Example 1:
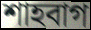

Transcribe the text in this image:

শাহবাগ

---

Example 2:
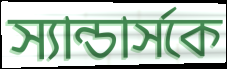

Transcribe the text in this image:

স্যান্ডার্সকে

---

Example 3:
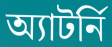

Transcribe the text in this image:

অ্যাটর্নি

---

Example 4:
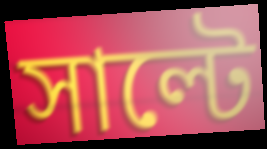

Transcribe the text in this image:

সাল্টে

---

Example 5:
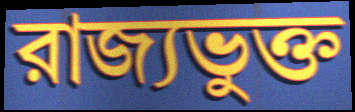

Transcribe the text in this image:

রাজ্যভুক্ত